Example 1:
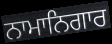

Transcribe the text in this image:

ਨਾਮਾਨਿਗਾਰ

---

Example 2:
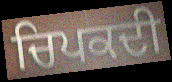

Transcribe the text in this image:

ਚਿਪਕਦੀ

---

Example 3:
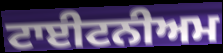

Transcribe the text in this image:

ਟਾਈਟਨੀਅਮ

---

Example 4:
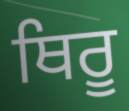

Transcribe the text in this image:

ਥਿਰੂ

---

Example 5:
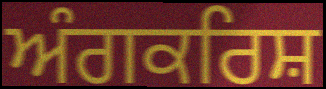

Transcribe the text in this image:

ਅੰਗਕਰਿਸ਼